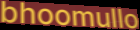
bhoomullo